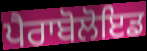
ਪੈਰਾਬੋਲੋਇਡ